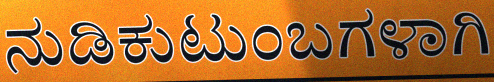
ನುಡಿಕುಟುಂಬಗಳಾಗಿ